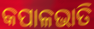
କପାଳଭାତି